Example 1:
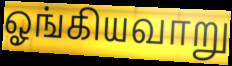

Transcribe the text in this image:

ஓங்கியவாறு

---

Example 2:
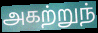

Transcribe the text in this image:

அகற்றுந்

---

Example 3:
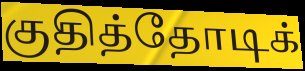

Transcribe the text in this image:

குதித்தோடிக்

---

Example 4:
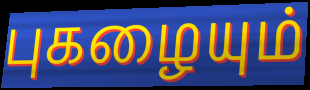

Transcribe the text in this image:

புகழையும்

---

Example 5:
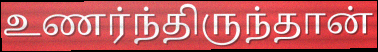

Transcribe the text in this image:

உணர்ந்திருந்தான்